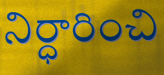
నిర్ధారించి